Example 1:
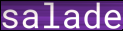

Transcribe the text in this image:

salade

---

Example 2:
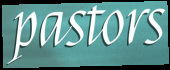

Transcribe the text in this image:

pastors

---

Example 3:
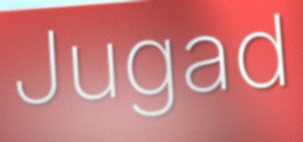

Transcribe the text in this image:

Jugad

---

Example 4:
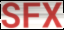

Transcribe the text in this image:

SFX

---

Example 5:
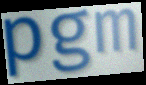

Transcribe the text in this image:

pgm